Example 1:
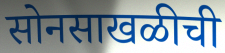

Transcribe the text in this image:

सोनसाखळीची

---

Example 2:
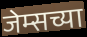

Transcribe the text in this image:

जेम्सच्या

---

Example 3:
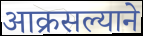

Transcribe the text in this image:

आक्रसल्याने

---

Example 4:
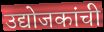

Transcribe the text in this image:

उद्योजकांची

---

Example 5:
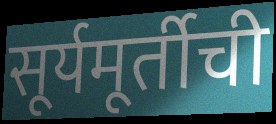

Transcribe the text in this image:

सूर्यमूर्तीची